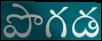
పొగడ